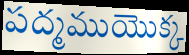
పద్మముయొక్క